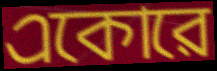
একোৱে